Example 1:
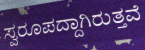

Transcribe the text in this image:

ಸ್ವರೂಪದ್ದಾಗಿರುತ್ತವೆ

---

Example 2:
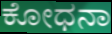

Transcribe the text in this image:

ಕೋಧನಾ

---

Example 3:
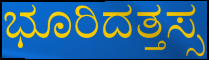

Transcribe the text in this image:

ಭೂರಿದತ್ತಸ್ಸ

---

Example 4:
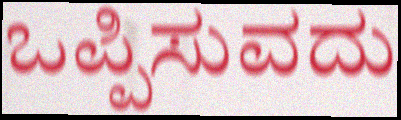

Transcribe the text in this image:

ಒಪ್ಪಿಸುವದು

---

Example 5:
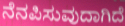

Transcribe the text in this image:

ನೆನಪಿಸುವುದಾಗಿದೆ